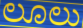
ಲೂಲು